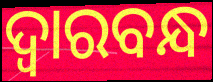
ଦ୍ବାରବନ୍ଧ